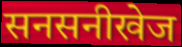
सनसनीखेज